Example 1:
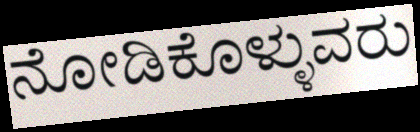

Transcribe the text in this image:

ನೋಡಿಕೊಳ್ಳುವರು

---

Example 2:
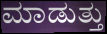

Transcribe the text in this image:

ಮಾಡುತ್ತು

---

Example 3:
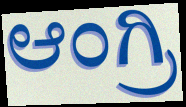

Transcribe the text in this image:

ಆಂಗ್ರಿ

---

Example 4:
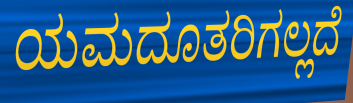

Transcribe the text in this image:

ಯಮದೂತರಿಗಲ್ಲದೆ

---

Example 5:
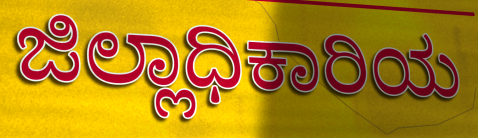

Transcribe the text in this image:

ಜಿಲ್ಲಾಧಿಕಾರಿಯ